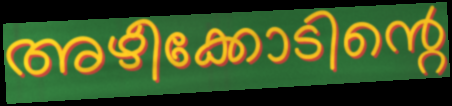
അഴീക്കോടിന്റെ